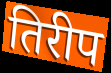
तिरीप